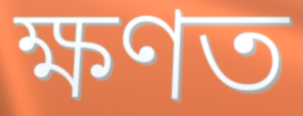
ক্ষণত